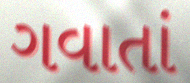
ગવાતાં